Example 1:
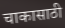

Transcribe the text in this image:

चाकासाठी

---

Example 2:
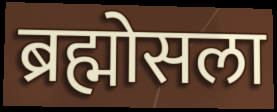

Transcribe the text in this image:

ब्रह्मोसला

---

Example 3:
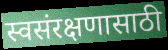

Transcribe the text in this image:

स्वसंरक्षणासाठी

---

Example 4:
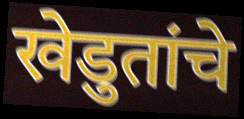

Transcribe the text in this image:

खेडुतांचे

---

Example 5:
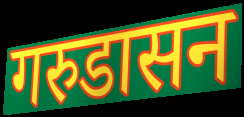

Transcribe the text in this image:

गरुडासन